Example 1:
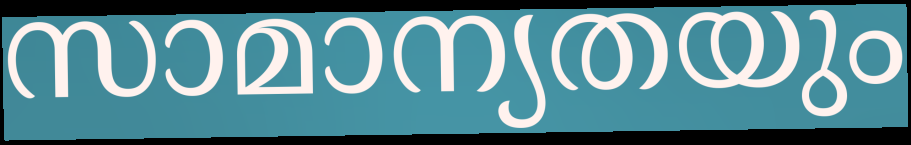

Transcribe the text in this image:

സാമാന്യതയും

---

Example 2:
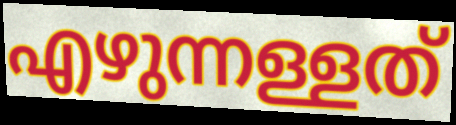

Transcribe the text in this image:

എഴുന്നള്ളത്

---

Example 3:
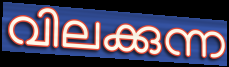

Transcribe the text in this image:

വിലക്കുന്ന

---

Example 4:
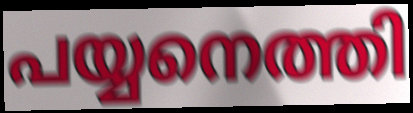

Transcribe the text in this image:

പയ്യനെത്തി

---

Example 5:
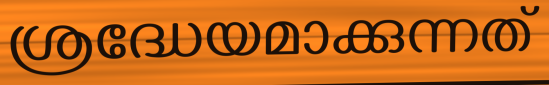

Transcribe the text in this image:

ശ്രദ്ധേയമാക്കുന്നത്